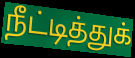
நீட்டித்துக்